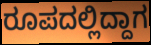
ರೂಪದಲ್ಲಿದ್ದಾಗ